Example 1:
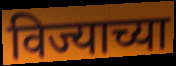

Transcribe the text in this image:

विज्याच्या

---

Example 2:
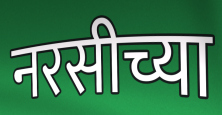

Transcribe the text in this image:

नरसीच्या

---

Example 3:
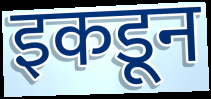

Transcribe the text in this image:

इकडून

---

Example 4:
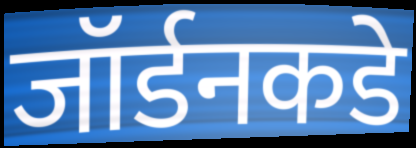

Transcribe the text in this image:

जॉर्डनकडे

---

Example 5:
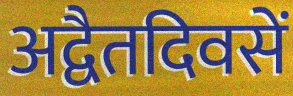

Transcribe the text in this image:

अद्वैतदिवसें